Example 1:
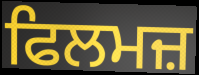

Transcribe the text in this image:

ਫਿਲਮਜ਼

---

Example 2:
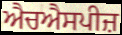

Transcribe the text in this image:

ਐਚਐਸਪੀਜ਼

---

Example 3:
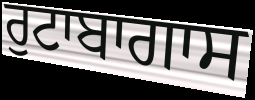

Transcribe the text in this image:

ਰੁਟਾਬਾਗਾਸ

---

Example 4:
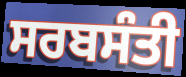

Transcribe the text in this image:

ਸਰਬਸੰਤੀ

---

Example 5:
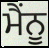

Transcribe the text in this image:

ਮੈਂਨੂ